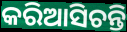
କରିଆସିଚନ୍ତି